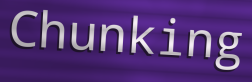
Chunking